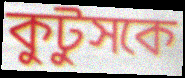
কুটুসকে